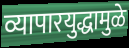
व्यापारयुद्धामुळे